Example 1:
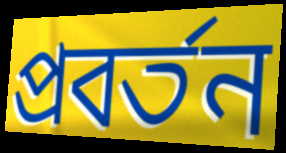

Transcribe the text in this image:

প্ৰবৰ্তন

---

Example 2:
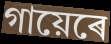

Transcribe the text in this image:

গায়েৰে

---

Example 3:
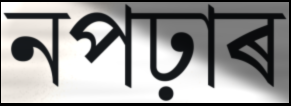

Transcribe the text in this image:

নপঢ়াৰ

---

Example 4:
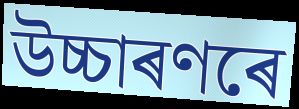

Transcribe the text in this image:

উচ্চাৰণৰে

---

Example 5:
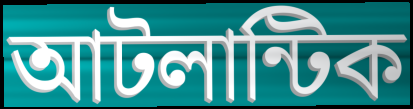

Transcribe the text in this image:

আটলান্টিক